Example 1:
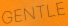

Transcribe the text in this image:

GENTLE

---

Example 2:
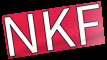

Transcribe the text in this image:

NKF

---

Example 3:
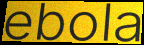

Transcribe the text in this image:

ebola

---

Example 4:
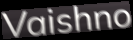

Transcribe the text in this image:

Vaishno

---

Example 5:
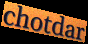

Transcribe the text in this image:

chotdar